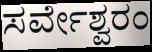
ಸರ್ವೇಶ್ವರಂ